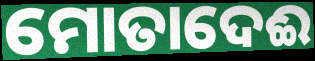
ମୋତାଦେଈ